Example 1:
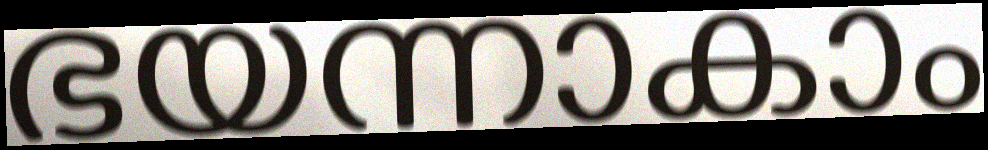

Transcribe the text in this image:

ഭയന്നാകാം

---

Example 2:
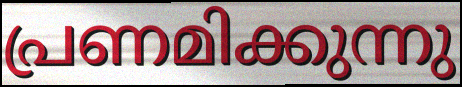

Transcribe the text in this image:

പ്രണമിക്കുന്നു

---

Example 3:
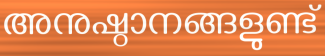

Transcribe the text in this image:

അനുഷ്ഠാനങ്ങളുണ്ട്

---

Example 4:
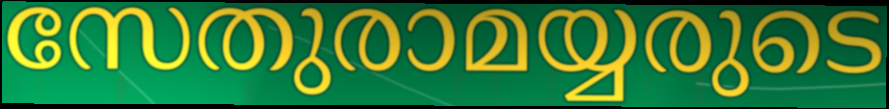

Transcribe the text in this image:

സേതുരാമയ്യരുടെ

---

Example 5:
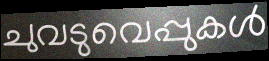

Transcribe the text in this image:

ചുവടുവെപ്പുകൾ